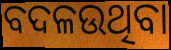
ବଦଳଉଥିବା